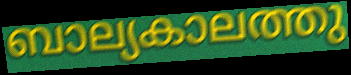
ബാല്യകാലത്തു